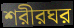
শরীরঘর